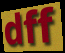
dff